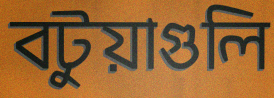
বটুয়াগুলি